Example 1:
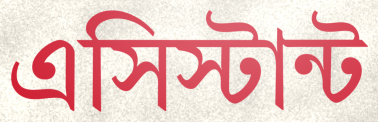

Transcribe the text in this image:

এসিস্টান্ট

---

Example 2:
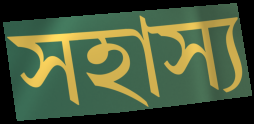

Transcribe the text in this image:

সহাস্য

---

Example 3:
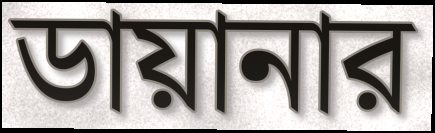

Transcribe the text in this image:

ডায়ানার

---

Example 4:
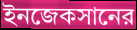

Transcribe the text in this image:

ইনজেকসানের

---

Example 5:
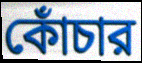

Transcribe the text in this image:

কোঁচার